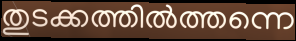
തുടക്കത്തിൽത്തന്നെ